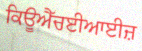
ਕਿਊਐੱਚਈਆਈਜ਼